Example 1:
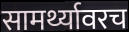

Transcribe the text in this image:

सामर्थ्यावरच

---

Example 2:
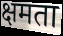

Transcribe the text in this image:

क्षमता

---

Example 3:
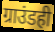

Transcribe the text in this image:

ग्राउंडही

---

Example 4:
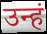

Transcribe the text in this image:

उन्हं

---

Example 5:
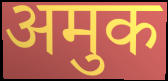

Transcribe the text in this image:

अमुक